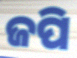
ଜପି